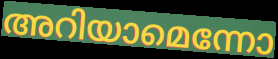
അറിയാമെന്നോ